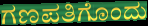
ಗಣಪತಿಗೊಂದು